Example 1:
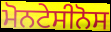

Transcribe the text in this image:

ਮੋਨਟੇਸੀਨੋਸ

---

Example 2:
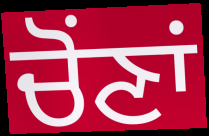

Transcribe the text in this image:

ਚੋਂਣਾਂ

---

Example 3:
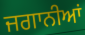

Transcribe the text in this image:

ਜਗਾਨੀਆਂ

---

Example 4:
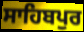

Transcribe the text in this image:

ਸਾਹਿਬਪੁਰ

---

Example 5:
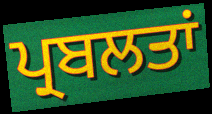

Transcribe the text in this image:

ਪ੍ਰਬਲਤਾਂ